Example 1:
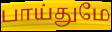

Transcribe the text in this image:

பாய்துமே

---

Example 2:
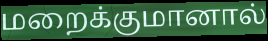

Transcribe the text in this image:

மறைக்குமானால்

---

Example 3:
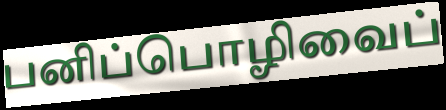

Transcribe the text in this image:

பனிப்பொழிவைப்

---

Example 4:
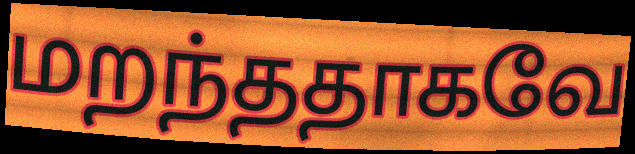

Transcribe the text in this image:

மறந்ததாகவே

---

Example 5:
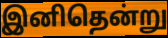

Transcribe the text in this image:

இனிதென்று